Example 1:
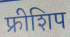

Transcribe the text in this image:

फ्रीशिप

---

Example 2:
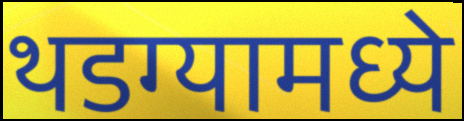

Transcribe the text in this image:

थडग्यामध्ये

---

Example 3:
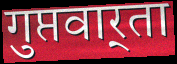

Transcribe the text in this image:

गुप्तवार्ता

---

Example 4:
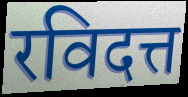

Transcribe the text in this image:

रविदत्त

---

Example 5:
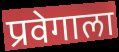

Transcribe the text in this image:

प्रवेगाला